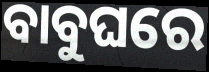
ବାବୁଘରେ